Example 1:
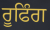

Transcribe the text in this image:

ਰੂਫਿੰਗ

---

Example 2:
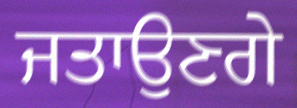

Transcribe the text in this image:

ਜਤਾਉਣਗੇ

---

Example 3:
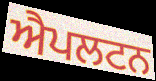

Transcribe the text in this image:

ਐਪਲਟਨ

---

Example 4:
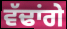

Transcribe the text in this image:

ਵੱਢਾਂਗੇ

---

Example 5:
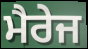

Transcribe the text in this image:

ਮੈਰੇਜ